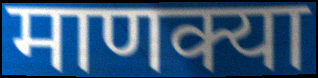
माणक्या